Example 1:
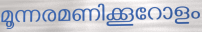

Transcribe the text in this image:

മൂന്നരമണിക്കൂറോളം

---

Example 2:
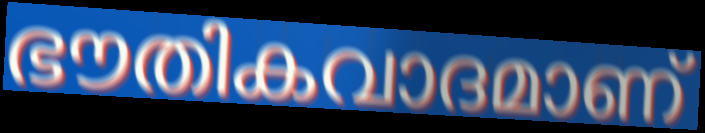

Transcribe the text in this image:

ഭൗതികവാദമാണ്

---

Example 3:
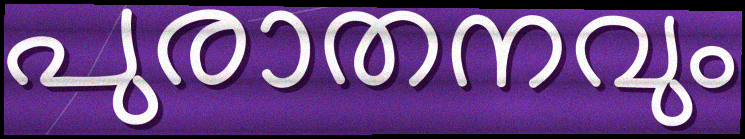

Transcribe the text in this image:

പുരാതനവും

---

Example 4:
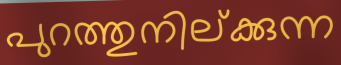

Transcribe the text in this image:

പുറത്തുനില്ക്കുന്ന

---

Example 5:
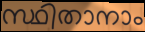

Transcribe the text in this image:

സ്ഥിതാനാം